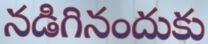
నడిగినందుకు